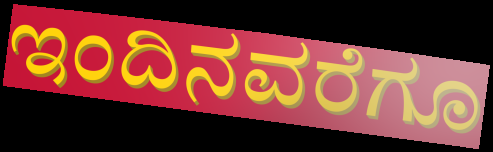
ಇಂದಿನವರೆಗೂ